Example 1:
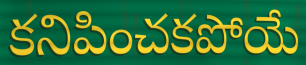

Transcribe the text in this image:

కనిపించకపోయే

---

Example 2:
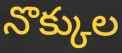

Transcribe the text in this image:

నొక్కుల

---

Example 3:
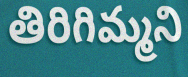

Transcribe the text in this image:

తిరిగిమ్మని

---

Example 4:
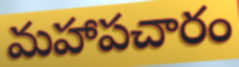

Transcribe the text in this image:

మహాపచారం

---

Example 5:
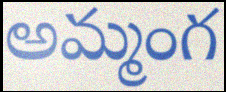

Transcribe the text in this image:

అమ్మంగ